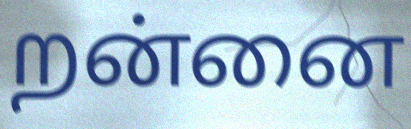
றன்னை